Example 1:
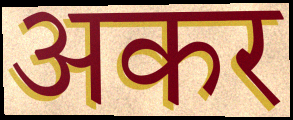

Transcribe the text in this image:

अकर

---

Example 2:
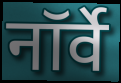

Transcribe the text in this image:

नॉर्वे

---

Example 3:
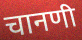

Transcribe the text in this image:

चानणी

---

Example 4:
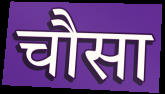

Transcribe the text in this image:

चौसा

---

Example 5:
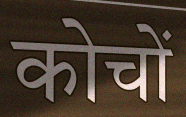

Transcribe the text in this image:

कोचों